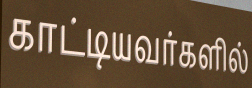
காட்டியவர்களில்